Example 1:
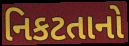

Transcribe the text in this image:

નિકટતાનો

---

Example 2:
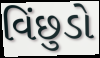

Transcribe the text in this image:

વિંછુડો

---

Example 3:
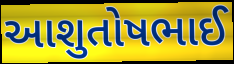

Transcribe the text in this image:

આશુતોષભાઈ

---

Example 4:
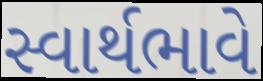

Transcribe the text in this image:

સ્વાર્થભાવે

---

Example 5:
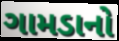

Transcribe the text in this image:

ગામડાનો